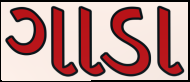
ગાડા